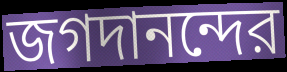
জগদানন্দের